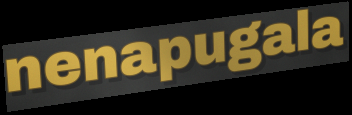
nenapugala